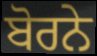
ਬੋਰਨੇ